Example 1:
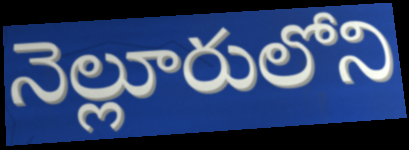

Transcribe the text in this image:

నెల్లూరులోని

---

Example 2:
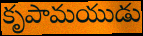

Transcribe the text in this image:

కృపామయుడు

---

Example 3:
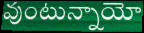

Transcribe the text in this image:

వుంటున్నాయో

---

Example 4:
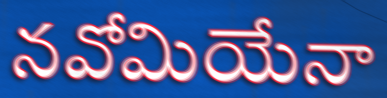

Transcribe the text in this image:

నవోమియేనా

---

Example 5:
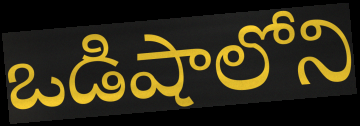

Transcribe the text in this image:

ఒడిషాలోని